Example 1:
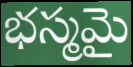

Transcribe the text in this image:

భస్మమై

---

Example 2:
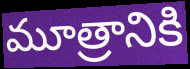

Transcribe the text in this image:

మూత్రానికి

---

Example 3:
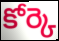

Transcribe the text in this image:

కోర్కె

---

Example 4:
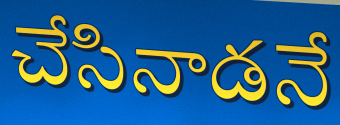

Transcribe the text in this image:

చేసినాడనే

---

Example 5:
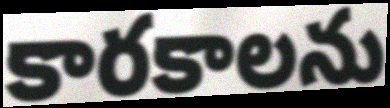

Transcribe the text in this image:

కారకాలను